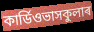
কাৰ্ডিওভাসকুলাৰ